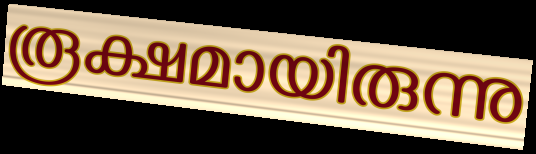
രൂക്ഷമായിരുന്നു